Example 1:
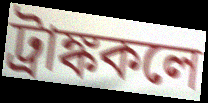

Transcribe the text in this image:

ট্রাঙ্ককলে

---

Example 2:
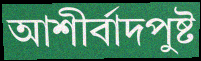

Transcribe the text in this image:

আশীর্বাদপুষ্ট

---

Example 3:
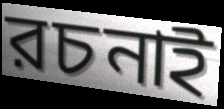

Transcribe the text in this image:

রচনাই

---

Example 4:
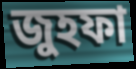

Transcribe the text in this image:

জুহফা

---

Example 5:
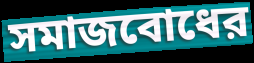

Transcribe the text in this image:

সমাজবোধের